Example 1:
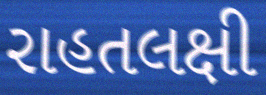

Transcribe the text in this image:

રાહતલક્ષી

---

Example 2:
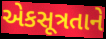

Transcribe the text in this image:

એકસૂત્રતાને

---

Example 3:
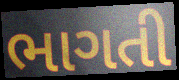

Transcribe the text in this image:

ભાગતી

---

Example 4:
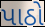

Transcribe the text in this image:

પાઠો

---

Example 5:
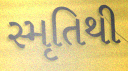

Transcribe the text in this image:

સ્મૃતિથી